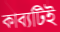
কাব্যটিই